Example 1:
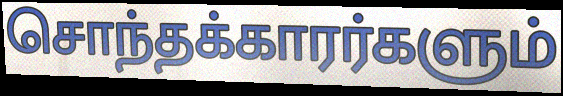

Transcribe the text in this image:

சொந்தக்காரர்களும்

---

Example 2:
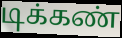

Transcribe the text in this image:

டிக்கண்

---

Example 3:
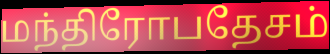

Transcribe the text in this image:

மந்திரோபதேசம்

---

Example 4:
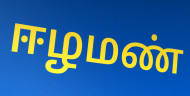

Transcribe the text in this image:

ஈழமண்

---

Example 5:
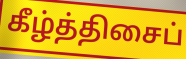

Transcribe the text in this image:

கீழ்த்திசைப்